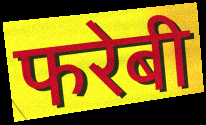
फरेबी